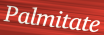
Palmitate